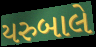
યરુબાલે